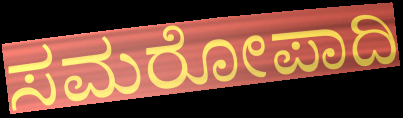
ಸಮರೋಪಾದಿ